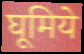
घूमिये